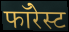
फॉरेस्ट